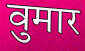
वुमार